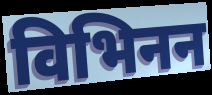
विभिनन